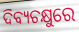
ଦିବ୍ୟଚକ୍ଷୁରେ